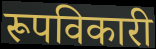
रूपविकारी